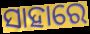
ସାହାରେ